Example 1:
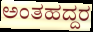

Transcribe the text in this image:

ಅಂತಹದ್ದರ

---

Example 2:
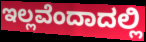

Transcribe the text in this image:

ಇಲ್ಲವೆಂದಾದಲ್ಲಿ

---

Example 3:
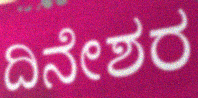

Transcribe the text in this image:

ದಿನೇಶರ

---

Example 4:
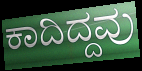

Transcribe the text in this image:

ಕಾದಿದ್ದವು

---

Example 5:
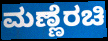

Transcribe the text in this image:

ಮಣ್ಣೆರಚಿ